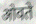
ओवते